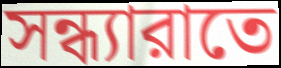
সন্ধ্যারাতে